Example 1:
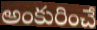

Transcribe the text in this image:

అంకురించే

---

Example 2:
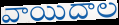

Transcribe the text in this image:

వాయిదాల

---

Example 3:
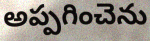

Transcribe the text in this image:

అప్పగించెను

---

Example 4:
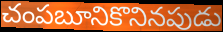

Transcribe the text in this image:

చంపబూనికొనినపుడు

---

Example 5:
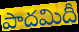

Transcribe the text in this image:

పాదమిదీ